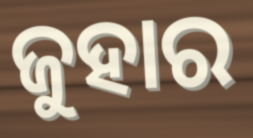
ଜୁହାର